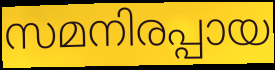
സമനിരപ്പായ